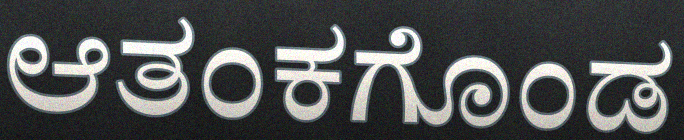
ಆತಂಕಗೊಂಡ